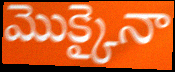
మొక్కైనా